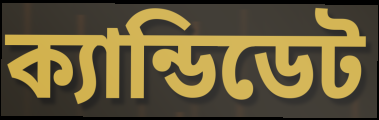
ক্যান্ডিডেট